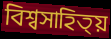
বিশ্বসাহিত্য়